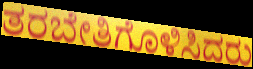
ತರಬೇತಿಗೊಳಿಸಿದರು